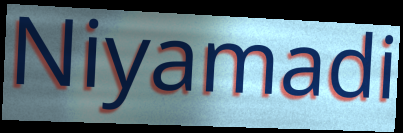
Niyamadi